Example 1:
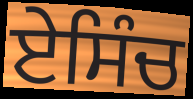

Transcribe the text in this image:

ਏਸਿੰਚ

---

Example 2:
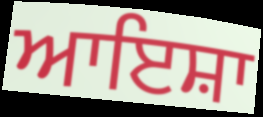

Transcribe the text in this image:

ਆਇਸ਼ਾ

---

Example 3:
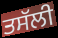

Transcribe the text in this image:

ਤਸੱਲੀ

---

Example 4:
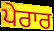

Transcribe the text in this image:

ਪੇਰਾਰ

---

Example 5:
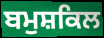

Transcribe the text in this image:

ਬਮੁਸ਼ਕਿਲ